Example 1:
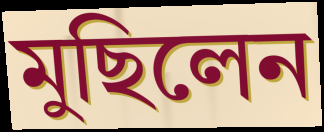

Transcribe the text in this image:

মুছিলেন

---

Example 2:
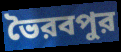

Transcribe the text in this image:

ভৈরবপুর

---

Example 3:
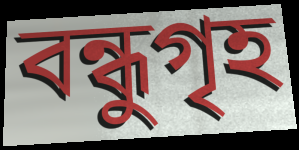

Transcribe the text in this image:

বন্ধুগৃহ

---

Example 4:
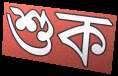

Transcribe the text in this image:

শুক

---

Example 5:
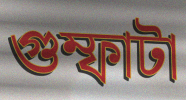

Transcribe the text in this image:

গুম্ফাটা